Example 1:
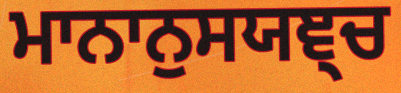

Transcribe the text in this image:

ਮਾਨਾਨੁਸਯਞ੍ਚ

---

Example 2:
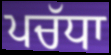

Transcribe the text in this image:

ਪਚੱਧਾ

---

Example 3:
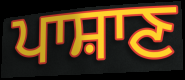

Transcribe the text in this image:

ਪਾਸ਼ਾਣ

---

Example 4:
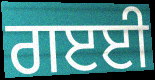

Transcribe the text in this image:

ਗੲਈ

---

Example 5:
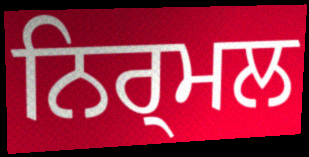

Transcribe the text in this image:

ਨਿਰ੍ਮਲ